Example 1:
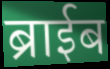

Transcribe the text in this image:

ब्राईब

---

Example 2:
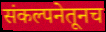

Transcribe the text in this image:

संकल्पनेतूनच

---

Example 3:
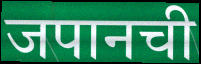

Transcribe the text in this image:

जपानची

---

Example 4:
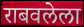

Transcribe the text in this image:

राबवलेला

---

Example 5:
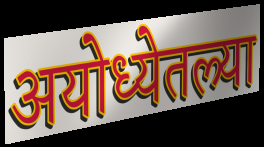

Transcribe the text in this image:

अयोध्येतल्या